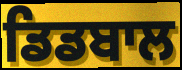
ਡਿਡਬਾਲ